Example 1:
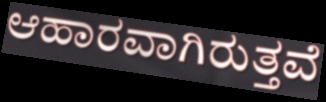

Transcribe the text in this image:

ಆಹಾರವಾಗಿರುತ್ತವೆ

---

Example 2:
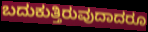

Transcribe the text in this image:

ಬದುಕುತ್ತಿರುವುದಾದರೂ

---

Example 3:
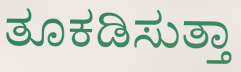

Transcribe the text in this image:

ತೂಕಡಿಸುತ್ತಾ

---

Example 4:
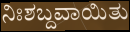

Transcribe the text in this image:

ನಿಃಶಬ್ದವಾಯಿತು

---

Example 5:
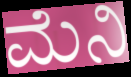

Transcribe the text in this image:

ಮೆನಿ